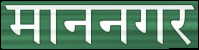
माननगर